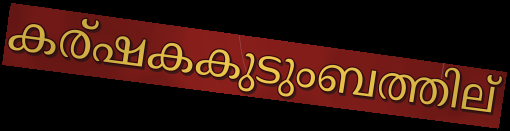
കര്ഷകകുടുംബത്തില്